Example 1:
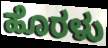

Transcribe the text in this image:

ಹೊರಳು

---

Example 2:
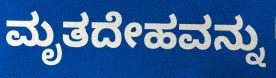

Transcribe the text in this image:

ಮೃತದೇಹವನ್ನು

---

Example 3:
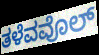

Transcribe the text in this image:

ತಳೆವವೊಲ್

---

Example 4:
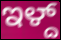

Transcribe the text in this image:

ಇಳ್ದ್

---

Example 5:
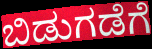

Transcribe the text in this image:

ಬಿಡುಗಡೆಗೆ